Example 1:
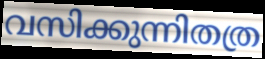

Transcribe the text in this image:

വസിക്കുന്നിതത്ര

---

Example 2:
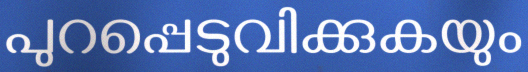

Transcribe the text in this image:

പുറപ്പെടുവിക്കുകയും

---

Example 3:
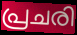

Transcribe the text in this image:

പ്രചരി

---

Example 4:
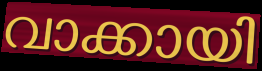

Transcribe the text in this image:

വാക്കായി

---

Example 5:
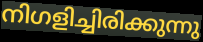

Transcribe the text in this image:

നിഗളിച്ചിരിക്കുന്നു